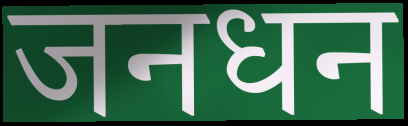
जनधन